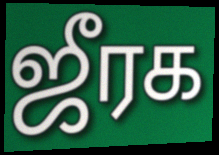
ஜீரக